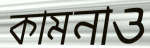
কামনাও